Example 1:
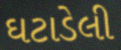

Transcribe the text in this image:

ઘટાડેલી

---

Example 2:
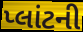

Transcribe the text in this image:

પ્લાંટની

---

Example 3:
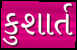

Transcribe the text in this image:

કુશાર્ત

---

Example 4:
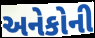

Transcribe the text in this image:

અનેકોની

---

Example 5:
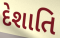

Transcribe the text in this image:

દેશાતિ